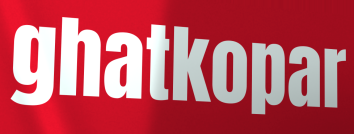
ghatkopar